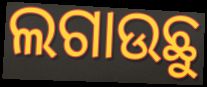
ଲଗାଉଛୁ